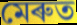
মেৰুত